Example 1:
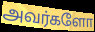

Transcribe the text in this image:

அவர்களோ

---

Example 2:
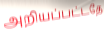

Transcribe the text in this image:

அறியப்பட்டதே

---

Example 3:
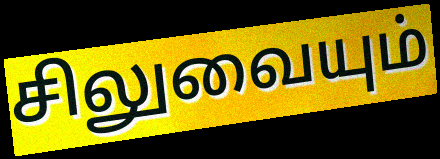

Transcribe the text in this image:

சிலுவையும்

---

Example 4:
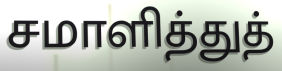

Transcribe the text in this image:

சமாளித்துத்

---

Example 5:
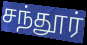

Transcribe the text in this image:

சந்தூர்